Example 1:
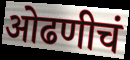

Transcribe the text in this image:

ओढणीचं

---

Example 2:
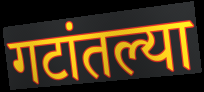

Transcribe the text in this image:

गटांतल्या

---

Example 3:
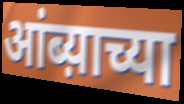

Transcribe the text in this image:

आंब्य़ाच्या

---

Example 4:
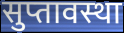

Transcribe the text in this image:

सुप्तावस्था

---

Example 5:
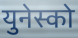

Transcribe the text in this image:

युनेस्को